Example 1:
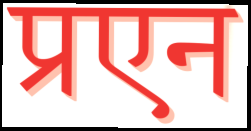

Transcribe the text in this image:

प्रएन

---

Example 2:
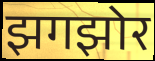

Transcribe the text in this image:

झगझोर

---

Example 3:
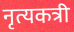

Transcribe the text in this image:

नृत्यकत्री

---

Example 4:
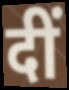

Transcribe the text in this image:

दीं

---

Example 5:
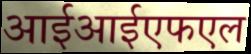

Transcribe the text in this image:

आईआईएफएल